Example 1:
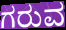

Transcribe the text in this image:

ಗರುವ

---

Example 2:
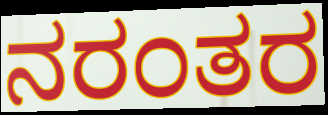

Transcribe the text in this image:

ನರಂತರ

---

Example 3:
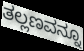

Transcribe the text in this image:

ತಲ್ಲಣವನ್ನೂ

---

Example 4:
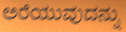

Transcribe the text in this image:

ಅರೆಯುವುದನ್ನು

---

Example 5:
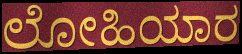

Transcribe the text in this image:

ಲೋಹಿಯಾರ